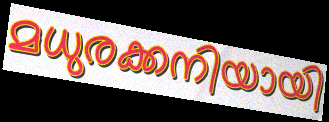
മധുരക്കനിയായി